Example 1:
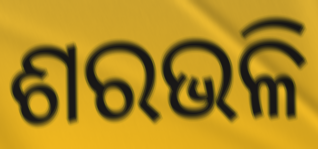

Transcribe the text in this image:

ଶରଭଳି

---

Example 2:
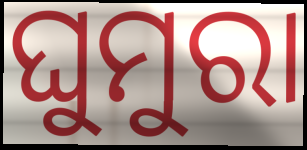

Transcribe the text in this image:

ଘୁମୁରା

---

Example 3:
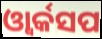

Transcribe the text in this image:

ଓ୍ୱାର୍କସପ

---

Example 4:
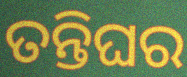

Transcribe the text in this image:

ତନ୍ତିଘର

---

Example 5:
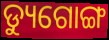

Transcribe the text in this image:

ଡ୍ୟୁଗୋଙ୍ଗ